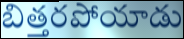
బిత్తరపోయాడు